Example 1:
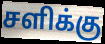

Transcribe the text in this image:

சளிக்கு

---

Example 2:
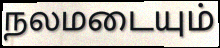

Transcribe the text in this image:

நலமடையும்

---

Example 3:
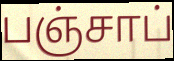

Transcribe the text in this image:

பஞ்சாப்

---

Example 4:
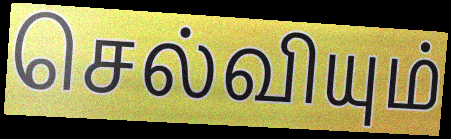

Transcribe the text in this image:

செல்வியும்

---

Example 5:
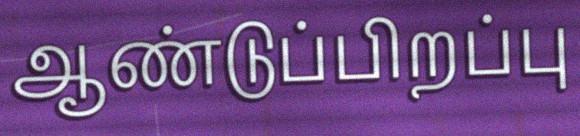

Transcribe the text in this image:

ஆண்டுப்பிறப்பு